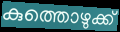
കുത്തൊഴുക്ക്